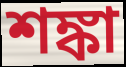
শঙ্কা